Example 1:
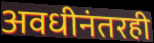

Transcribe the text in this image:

अवधीनंतरही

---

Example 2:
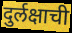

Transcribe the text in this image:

दुर्लक्षाची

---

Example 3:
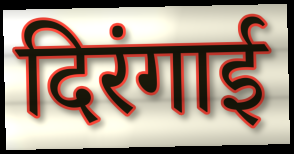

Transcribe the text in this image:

दिरंगाई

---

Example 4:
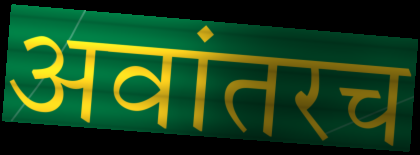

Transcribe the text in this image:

अवांतरच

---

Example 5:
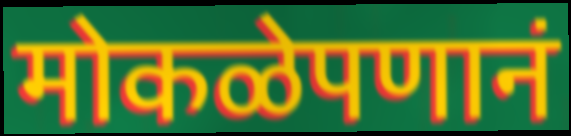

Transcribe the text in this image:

मोकळेपणानं